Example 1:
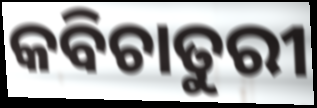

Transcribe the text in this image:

କବିଚାତୁରୀ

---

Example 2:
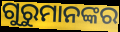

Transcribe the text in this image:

ଗୁରୁମାନଙ୍କର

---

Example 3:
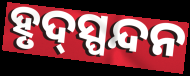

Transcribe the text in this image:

ହୃଦ୍‍ସ୍ପନ୍ଦନ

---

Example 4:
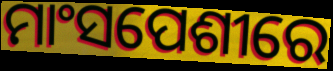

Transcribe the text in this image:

ମାଂସପେଶୀରେ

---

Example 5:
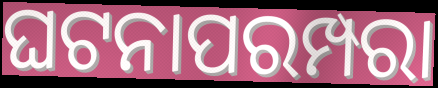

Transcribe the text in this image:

ଘଟନାପରମ୍ପରା